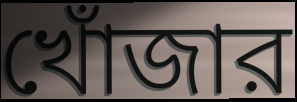
খোঁজার